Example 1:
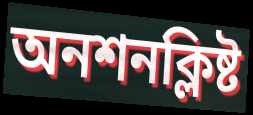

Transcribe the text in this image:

অনশনক্লিষ্ট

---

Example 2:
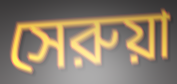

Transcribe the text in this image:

সেরুয়া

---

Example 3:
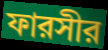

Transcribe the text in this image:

ফারসীর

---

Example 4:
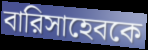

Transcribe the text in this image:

বারিসাহেবকে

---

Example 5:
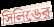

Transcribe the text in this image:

সিলিঙের